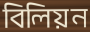
বিলিয়ন